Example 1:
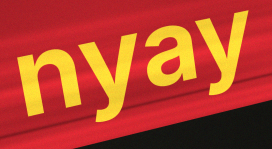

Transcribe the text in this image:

nyay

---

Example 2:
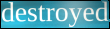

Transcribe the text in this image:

destroyed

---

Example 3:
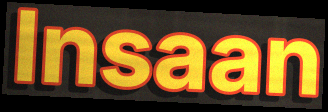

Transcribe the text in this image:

Insaan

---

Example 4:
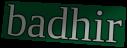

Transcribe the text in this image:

badhir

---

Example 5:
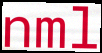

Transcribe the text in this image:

nml